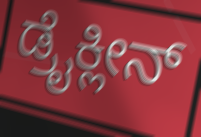
ಡ್ರೈಕ್ಲೀನ್